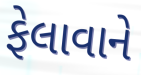
ફેલાવાને